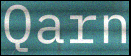
Qarn